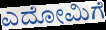
ಎದೋಮಿಗೆ